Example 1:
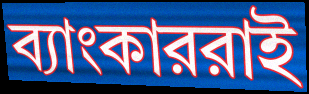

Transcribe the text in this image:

ব্যাংকাররাই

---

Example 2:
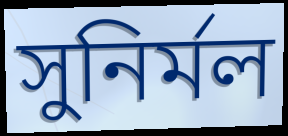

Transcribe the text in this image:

সুনির্মল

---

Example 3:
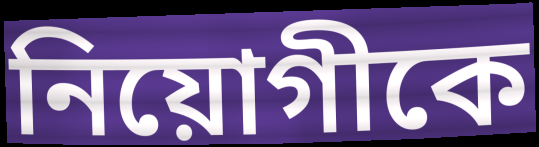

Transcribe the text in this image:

নিয়োগীকে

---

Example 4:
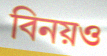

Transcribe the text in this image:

বিনয়ও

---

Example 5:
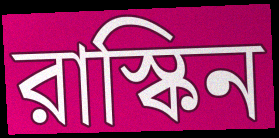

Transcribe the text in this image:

রাস্কিন